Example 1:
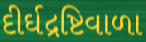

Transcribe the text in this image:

દીર્ઘદ્રષ્ટિવાળા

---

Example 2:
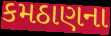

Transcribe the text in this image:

કમઠાણના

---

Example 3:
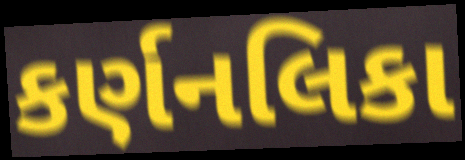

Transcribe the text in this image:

કર્ણનલિકા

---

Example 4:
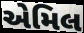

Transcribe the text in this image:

એમિલ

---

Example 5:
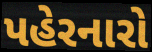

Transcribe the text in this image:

પહેરનારો